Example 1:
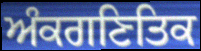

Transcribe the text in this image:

ਅੰਕਗਣਿਤਿਕ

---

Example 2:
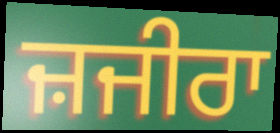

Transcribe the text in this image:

ਜ਼ਜੀਰਾ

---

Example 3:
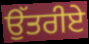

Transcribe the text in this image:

ਉੱਤਰੀਏ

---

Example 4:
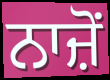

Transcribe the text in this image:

ਨਾਜ਼ੋਂ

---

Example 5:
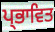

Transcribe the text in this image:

ਪ੍ਭਾਵਿਤ